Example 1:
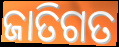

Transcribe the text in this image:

ଜାତିଗତ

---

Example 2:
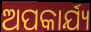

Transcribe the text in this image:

ଅପକାର୍ଯ୍ୟ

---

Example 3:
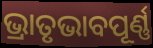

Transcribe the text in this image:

ଭ୍ରାତୃଭାବପୂର୍ଣ୍ଣ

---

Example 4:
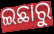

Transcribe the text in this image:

ଇଛାରୁ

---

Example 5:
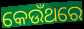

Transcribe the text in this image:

କେଉଁଥରେ